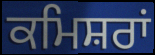
ਕਮਿਸ਼ਰਾਂ